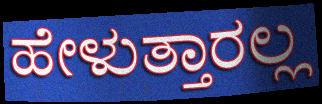
ಹೇಳುತ್ತಾರಲ್ಲ